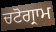
ਚਟੋਗ੍ਰਾਮ